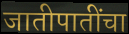
जातीपातींचा